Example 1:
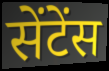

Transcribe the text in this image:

सेंटेंस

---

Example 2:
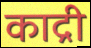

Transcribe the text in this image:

काद्री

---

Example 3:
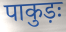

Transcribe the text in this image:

पाकुड़ः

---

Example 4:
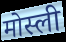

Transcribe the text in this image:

मोस्ली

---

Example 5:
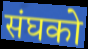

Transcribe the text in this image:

संघको